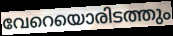
വേറെയൊരിടത്തും